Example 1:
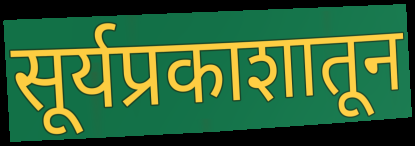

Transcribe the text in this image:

सूर्यप्रकाशातून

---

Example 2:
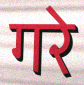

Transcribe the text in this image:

गरे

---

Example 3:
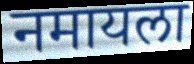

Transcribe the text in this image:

नमायला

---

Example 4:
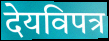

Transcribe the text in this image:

देयविपत्र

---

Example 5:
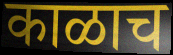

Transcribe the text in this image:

काळाच